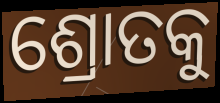
ଶ୍ରୋତକୁ